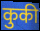
कुकी